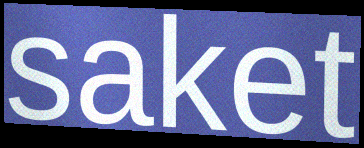
saket